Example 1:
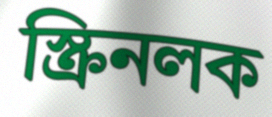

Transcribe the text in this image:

স্ক্রিনলক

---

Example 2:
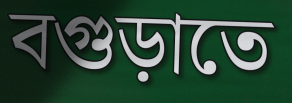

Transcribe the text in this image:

বগুড়াতে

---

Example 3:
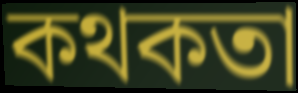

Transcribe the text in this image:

কথকতা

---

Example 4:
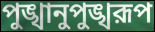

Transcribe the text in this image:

পুঙ্খানুপুঙ্খরূপ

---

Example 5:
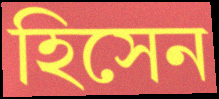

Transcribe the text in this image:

হিসেন